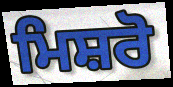
ਮਿਸ਼ਰੋ